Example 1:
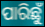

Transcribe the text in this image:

ପାରିଛୁଁ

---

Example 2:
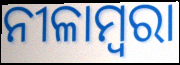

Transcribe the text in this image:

ନୀଳାମ୍ବରା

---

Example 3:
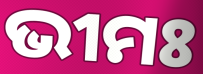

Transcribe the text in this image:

ଭୀମଃ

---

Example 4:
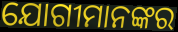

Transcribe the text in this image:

ଯୋଗୀମାନଙ୍କର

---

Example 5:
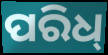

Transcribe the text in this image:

ପରିଧ୍